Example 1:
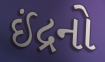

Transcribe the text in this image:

ઈંદ્રનો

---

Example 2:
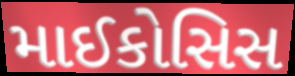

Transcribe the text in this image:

માઈકોસિસ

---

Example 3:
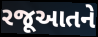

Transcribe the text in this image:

રજૂઆતને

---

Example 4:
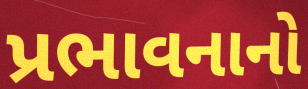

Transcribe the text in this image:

પ્રભાવનાનો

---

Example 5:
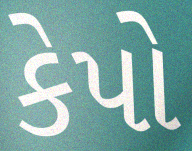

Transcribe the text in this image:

કેપો